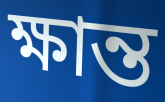
ক্ষান্ত